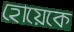
হোয়েকে